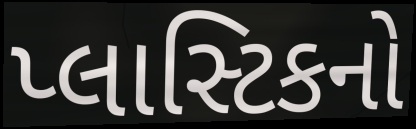
પ્લાસ્ટિકનો